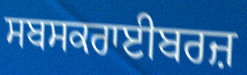
ਸਬਸਕਰਾਈਬਰਜ਼